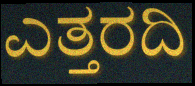
ಎತ್ತರದಿ